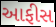
આફીસ